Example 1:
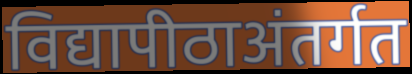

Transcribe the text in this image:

विद्यापीठाअंतर्गत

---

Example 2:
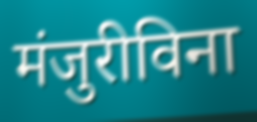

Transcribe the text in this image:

मंजुरीविना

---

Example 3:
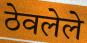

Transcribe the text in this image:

ठेवलेले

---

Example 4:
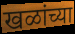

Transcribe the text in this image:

खळांच्या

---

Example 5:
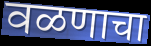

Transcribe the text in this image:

वळणाचा